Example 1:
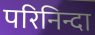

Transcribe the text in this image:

परिनिन्दा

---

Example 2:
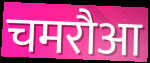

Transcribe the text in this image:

चमरौआ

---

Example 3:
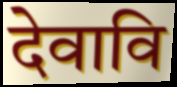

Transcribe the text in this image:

देवावि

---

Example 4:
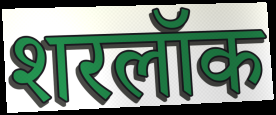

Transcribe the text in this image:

शरलॉक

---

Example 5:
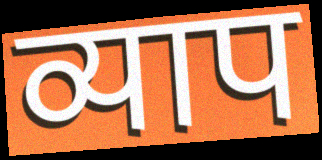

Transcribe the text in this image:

व्याप